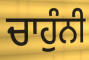
ਚਾਹੁੰਨੀ